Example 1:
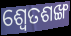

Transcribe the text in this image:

ଶ୍ୱେତଶଙ୍ଖ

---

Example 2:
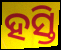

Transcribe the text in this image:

ହସ୍ତି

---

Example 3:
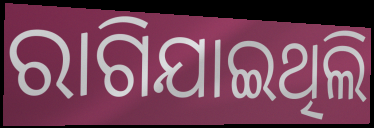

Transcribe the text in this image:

ରାଗିଯାଇଥିଲି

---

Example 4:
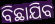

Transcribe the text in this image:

ବିଛାଯିବ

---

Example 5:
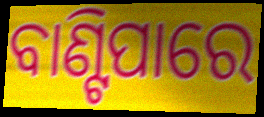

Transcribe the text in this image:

ବାଣ୍ଟିପାରେ